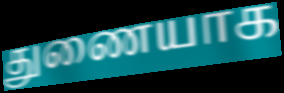
துணையாக